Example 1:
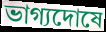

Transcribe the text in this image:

ভাগ্যদোষে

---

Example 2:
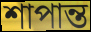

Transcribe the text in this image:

শাপান্ত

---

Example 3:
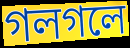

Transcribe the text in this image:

গলগলে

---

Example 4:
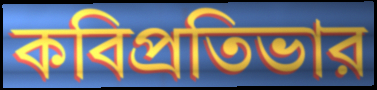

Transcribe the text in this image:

কবিপ্রতিভার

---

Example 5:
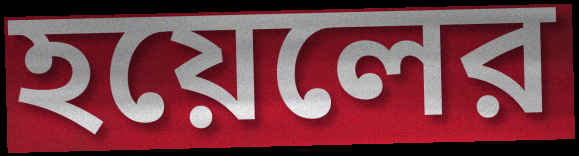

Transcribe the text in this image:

হয়েলের